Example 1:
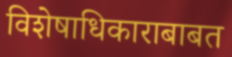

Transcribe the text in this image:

विशेषाधिकाराबाबत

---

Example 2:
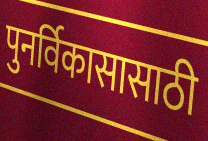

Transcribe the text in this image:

पुनर्विकासासाठी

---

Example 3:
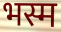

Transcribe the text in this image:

भस्म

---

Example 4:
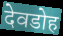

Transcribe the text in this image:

देवडोह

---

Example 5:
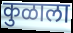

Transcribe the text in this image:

कुळाला